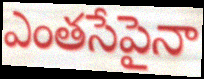
ఎంతసేపైనా